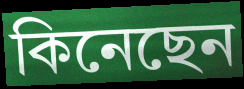
কিনেছেন